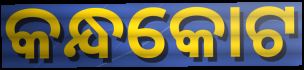
କନ୍ଧକୋଟ